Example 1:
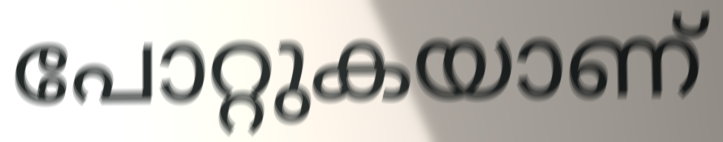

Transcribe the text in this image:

പോറ്റുകയാണ്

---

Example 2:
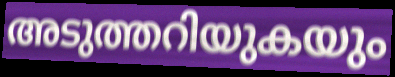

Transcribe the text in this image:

അടുത്തറിയുകയും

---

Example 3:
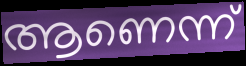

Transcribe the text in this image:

ആണെന്ന്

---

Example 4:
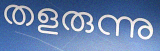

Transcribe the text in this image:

തളരുന്നു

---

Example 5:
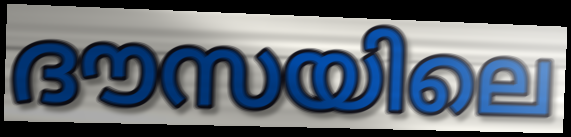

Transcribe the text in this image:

ദൗസയിലെ